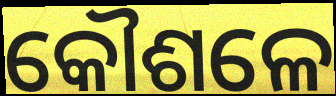
କୌଶଳେ